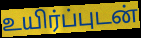
உயிர்ப்புடன்